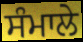
ਸੰਮਾਲੇ